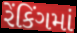
રેંકિંગમાં